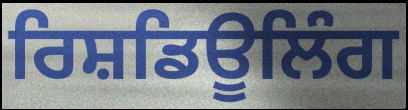
ਰਿਸ਼ਡਿਊਲਿੰਗ